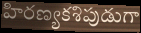
హిరణ్యకశిపుడుగా